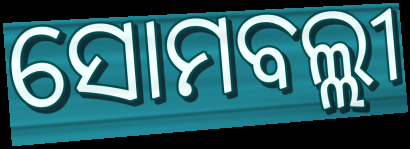
ସୋମବଲ୍ଲୀ